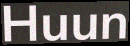
Huun